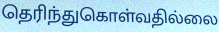
தெரிந்துகொள்வதில்லை